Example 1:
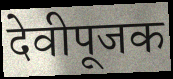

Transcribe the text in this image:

देवीपूजक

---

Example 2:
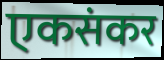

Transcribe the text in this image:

एकसंकर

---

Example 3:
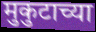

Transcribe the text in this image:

मुकुटाच्या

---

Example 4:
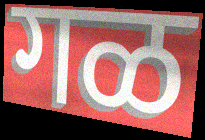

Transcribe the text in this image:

गळ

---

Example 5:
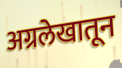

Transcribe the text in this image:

अग्रलेखातून